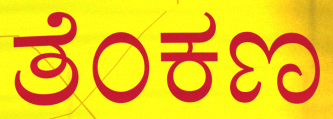
ತೆಂಕಣ